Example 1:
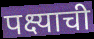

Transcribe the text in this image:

पक्ष्याची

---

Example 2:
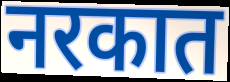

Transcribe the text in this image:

नरकात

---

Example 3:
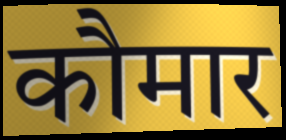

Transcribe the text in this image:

कौमार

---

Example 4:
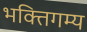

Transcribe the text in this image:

भक्तिगम्य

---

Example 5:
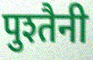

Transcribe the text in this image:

पुश्तैनी